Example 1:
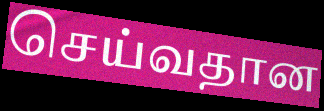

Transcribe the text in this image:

செய்வதான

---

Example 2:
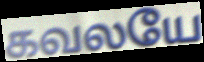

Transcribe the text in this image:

கவலயே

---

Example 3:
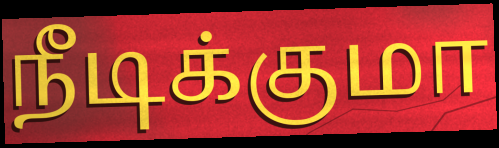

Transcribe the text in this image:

நீடிக்குமா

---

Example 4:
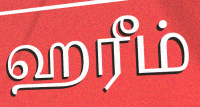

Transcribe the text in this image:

ஹரீம்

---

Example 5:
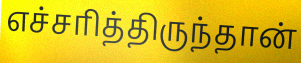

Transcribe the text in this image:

எச்சரித்திருந்தான்